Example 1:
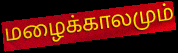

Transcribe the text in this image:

மழைக்காலமும்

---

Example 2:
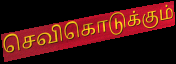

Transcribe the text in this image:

செவிகொடுக்கும்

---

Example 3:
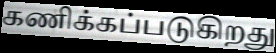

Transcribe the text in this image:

கணிக்கப்படுகிறது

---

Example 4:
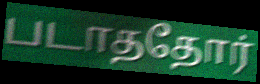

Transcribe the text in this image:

படாததோர்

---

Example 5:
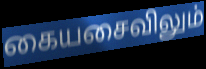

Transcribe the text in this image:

கையசைவிலும்